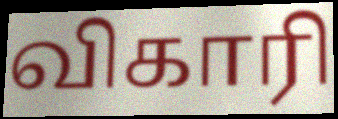
விகாரி